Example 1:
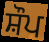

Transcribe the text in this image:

ਸ਼ੌਪ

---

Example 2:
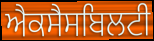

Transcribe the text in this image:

ਐਕਸੈਸਬਿਲਟੀ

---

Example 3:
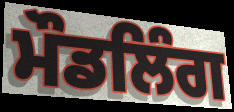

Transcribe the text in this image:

ਮੌਡਲਿੰਗ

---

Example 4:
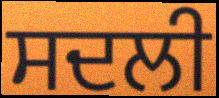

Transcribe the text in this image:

ਸਦਲੀ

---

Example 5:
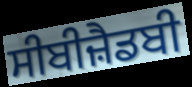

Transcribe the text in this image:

ਸੀਬੀਜ਼ੈਡਬੀ